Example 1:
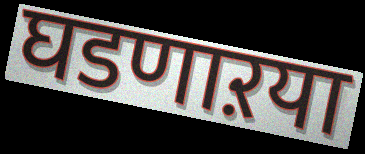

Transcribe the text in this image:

घडणाऱया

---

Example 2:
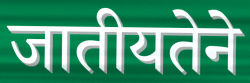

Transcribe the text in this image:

जातीयतेने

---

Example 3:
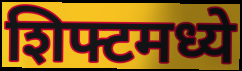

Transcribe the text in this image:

शिफ्टमध्ये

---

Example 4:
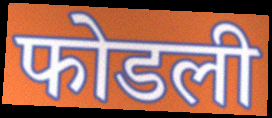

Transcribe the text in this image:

फोडली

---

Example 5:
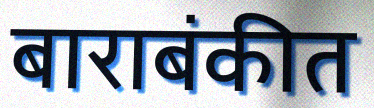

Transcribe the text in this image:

बाराबंकीत